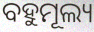
ବହୁମୂଲ୍ୟ